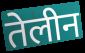
तेलीन